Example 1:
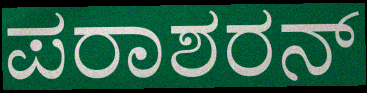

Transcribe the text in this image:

ಪರಾಶರನ್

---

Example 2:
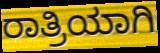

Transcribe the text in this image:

ರಾತ್ರಿಯಾಗಿ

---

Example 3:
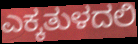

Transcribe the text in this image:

ಎಕ್ಕತುಳದಲಿ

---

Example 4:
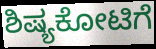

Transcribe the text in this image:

ಶಿಷ್ಯಕೋಟಿಗೆ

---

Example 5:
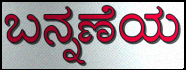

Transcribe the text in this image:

ಬನ್ನಣೆಯ